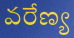
వరేణ్య